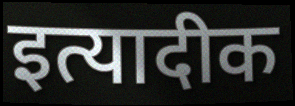
इत्यादीक